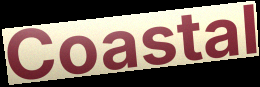
Coastal